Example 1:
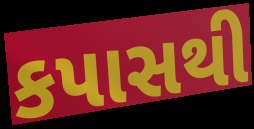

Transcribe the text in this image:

કપાસથી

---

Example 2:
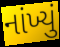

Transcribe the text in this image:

નાંખ્યું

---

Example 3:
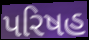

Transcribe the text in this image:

પરિષહ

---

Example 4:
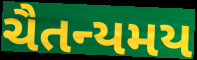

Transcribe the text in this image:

ચૈતન્યમય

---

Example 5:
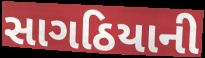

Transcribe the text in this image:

સાગઠિયાની